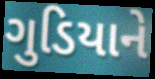
ગુડિયાને